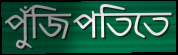
পুঁজিপতিতে